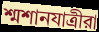
শ্মশানযাত্রীরা